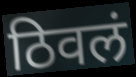
ठिवलं